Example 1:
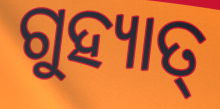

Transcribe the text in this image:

ଗୁହ୍ୟାତ୍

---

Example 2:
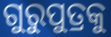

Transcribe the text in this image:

ଗୁରୁପୁତ୍ରକୁ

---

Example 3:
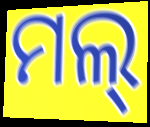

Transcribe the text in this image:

ମଲ୍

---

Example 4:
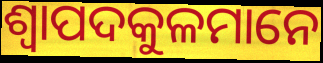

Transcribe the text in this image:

ଶ୍ୱାପଦକୁଳମାନେ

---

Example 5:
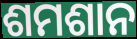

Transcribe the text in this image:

ଶମଶାନ